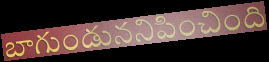
బాగుండుననిపించింది